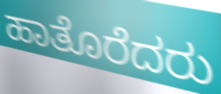
ಹಾತೊರೆದರು